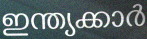
ഇന്ത്യക്കാർ